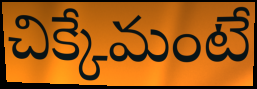
చిక్కేమంటే